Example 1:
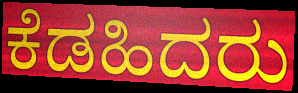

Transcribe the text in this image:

ಕೆಡಹಿದರು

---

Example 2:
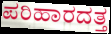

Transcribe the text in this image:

ಪರಿಹಾರದತ್ತ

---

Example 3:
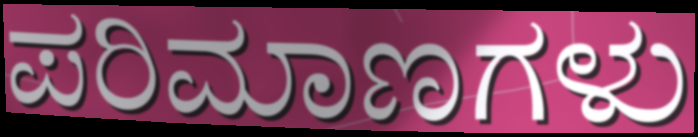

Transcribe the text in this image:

ಪರಿಮಾಣಗಳು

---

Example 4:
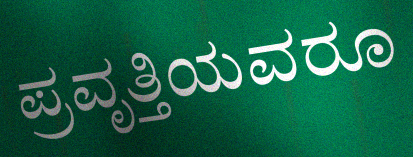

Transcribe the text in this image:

ಪ್ರವೃತ್ತಿಯವರೂ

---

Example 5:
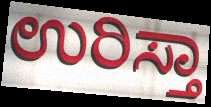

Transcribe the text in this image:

ಉರಿಸ್ತಾ